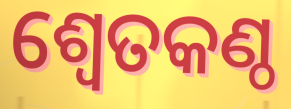
ଶ୍ୱେତକଣ୍ଠ